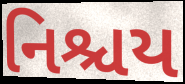
નિશ્ચય